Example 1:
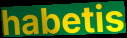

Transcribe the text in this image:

habetis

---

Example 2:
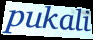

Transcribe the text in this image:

pukali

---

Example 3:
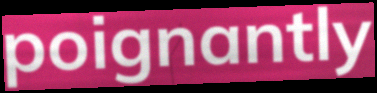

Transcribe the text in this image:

poignantly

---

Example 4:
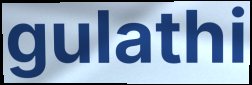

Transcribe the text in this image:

gulathi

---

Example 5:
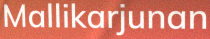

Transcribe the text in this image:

Mallikarjunan